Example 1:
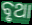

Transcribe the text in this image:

ବୃଥା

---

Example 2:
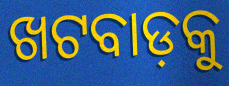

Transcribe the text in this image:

ଖଟବାଡ଼କୁ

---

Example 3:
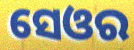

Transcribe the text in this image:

ସେଓର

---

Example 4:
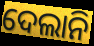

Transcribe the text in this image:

ଦେଲାନି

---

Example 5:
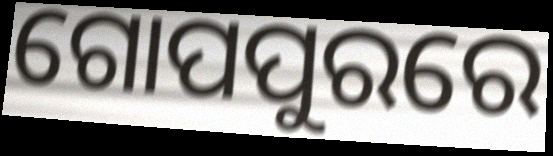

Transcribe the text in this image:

ଗୋପପୁରରେ